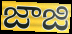
జాజి